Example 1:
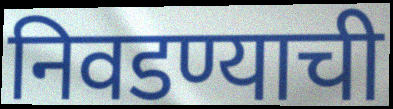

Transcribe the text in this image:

निवडण्याची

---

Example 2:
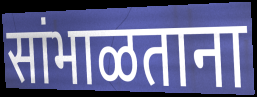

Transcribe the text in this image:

सांभाळताना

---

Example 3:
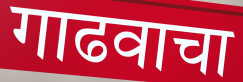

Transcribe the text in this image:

गाढवाचा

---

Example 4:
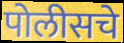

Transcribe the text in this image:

पोलीसचे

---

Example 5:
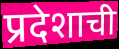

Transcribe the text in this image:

प्रदेशाची